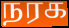
நரக